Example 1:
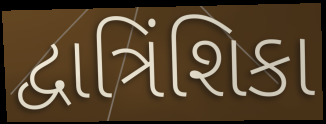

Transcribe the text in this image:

દ્વાત્રિંશિકા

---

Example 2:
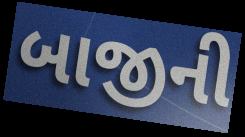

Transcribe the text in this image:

બાજીની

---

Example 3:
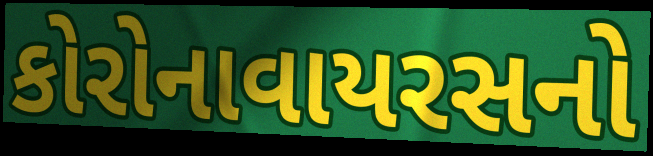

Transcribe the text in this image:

કોરોનાવાયરસનો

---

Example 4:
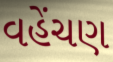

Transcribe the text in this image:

વહેંચણ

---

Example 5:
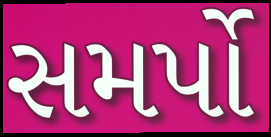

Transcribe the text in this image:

સમર્પો